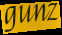
gunz